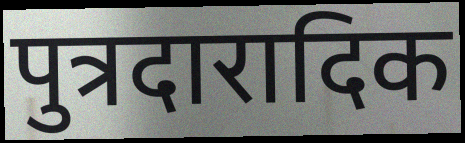
पुत्रदारादिक